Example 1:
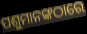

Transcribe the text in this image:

ପଶୁମାନଙ୍କଠାରେ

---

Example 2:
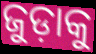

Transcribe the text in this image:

ଜୁଡ଼ାକୁ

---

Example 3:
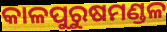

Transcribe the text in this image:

କାଳପୁରୁଷମଣ୍ଡଳ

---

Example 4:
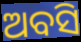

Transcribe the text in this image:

ଅବସି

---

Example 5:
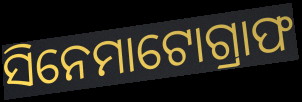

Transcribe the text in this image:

ସିନେମାଟୋଗ୍ରାଫ